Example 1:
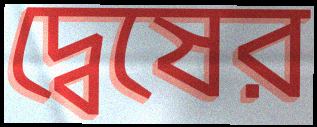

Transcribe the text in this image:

দ্বেষের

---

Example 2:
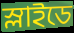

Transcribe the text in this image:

স্লাইডে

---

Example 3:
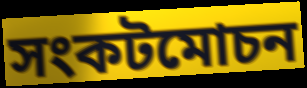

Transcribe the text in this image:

সংকটমোচন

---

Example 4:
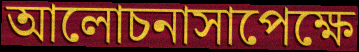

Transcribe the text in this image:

আলোচনাসাপেক্ষে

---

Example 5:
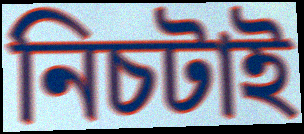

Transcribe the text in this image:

নিচটাই